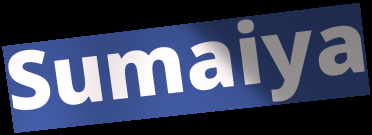
Sumaiya